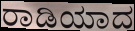
ರಾಡಿಯಾದ